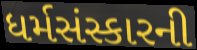
ધર્મસંસ્કારની